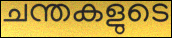
ചന്തകളുടെ